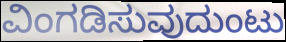
ವಿಂಗಡಿಸುವುದುಂಟು